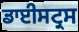
ਡਾਈਸਟ੍ਰਸ